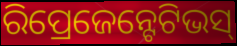
ରିପ୍ରେଜେନ୍ଟେଟିଭସ୍